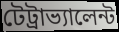
টেট্রাভ্যালেন্ট